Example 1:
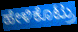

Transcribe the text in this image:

ಹೇಳಿಕೊಟ್ರು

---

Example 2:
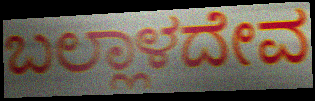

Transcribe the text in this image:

ಬಲ್ಲಾಳದೇವ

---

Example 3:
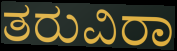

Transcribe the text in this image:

ತರುವಿರಾ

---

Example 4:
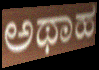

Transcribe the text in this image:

ಅಥಾಹ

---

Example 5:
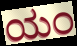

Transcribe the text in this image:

ಯಂ